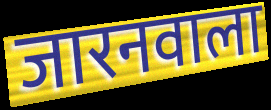
जारनवाला